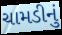
ચામડીનું